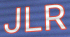
JLR